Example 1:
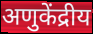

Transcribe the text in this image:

अणुकेंद्रीय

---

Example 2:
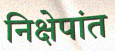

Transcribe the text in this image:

निक्षेपांत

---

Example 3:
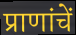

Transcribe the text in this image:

प्राणांचें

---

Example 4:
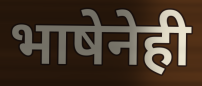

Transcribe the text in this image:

भाषेनेही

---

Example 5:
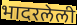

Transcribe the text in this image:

भादरलेली